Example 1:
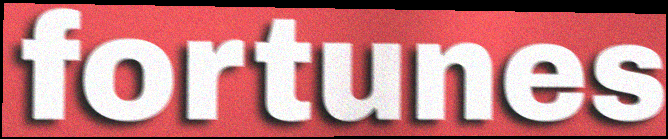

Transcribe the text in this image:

fortunes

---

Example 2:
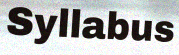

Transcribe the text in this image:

Syllabus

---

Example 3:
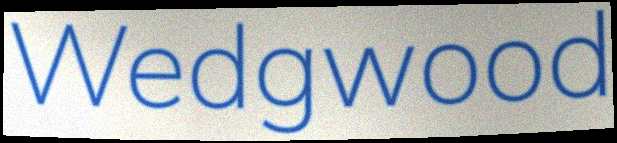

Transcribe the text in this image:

Wedgwood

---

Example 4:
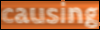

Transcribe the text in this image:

causing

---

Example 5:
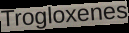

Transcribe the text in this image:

Trogloxenes